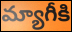
మ్యాగీకి